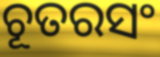
ଚୂତରସଂ